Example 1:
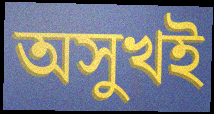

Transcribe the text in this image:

অসুখই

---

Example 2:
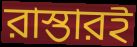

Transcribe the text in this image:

রাস্তারই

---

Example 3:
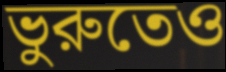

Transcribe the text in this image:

ভুরুতেও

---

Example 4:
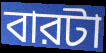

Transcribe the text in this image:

বারটা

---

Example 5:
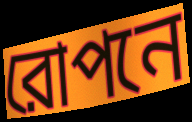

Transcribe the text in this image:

রোপনে